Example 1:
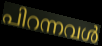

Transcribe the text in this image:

പിറന്നവൾ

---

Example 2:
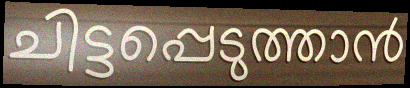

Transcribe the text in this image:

ചിട്ടപ്പെടുത്താൻ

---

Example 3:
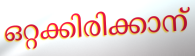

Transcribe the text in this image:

ഒറ്റക്കിരിക്കാന്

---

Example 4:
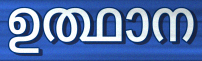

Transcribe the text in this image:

ഉത്ഥാന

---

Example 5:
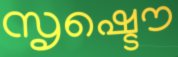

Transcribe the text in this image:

സൃഷ്ടൌ